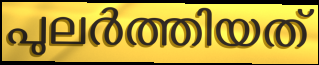
പുലർത്തിയത്